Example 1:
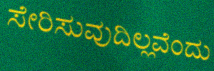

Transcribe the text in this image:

ಸೇರಿಸುವುದಿಲ್ಲವೆಂದು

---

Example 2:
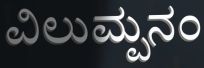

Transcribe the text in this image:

ವಿಲುಮ್ಪನಂ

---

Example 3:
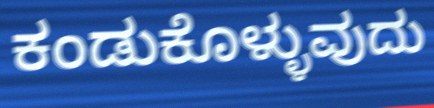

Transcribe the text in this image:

ಕಂಡುಕೊಳ್ಳುವುದು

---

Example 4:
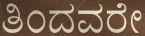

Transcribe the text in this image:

ತಿಂದವರೇ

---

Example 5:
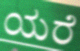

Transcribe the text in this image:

ಯರೆ